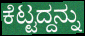
ಕೆಟ್ಟದ್ದನ್ನು